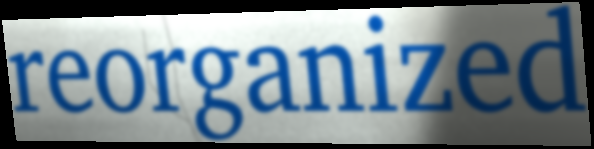
reorganized